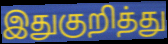
இதுகுறித்து